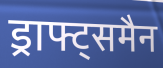
ड्राफ्ट्समैन